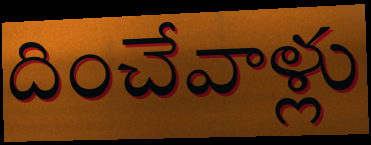
దించేవాళ్లు